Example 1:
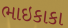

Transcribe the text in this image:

ભાઇકાકા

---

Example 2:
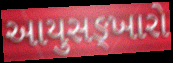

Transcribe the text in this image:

આયુસઙ્ખારો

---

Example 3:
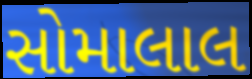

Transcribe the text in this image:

સોમાલાલ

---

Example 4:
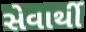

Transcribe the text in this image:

સેવાર્થી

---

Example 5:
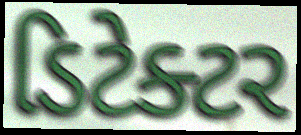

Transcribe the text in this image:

ડિટેક્ટર